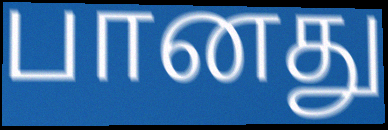
பானது